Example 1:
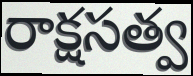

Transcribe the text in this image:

రాక్షసత్వ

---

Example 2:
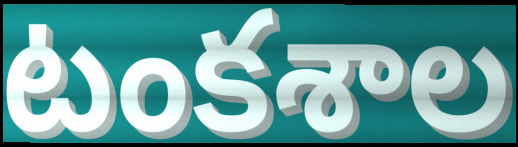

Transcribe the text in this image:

టంకశాల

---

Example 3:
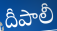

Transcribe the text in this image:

దీపాలీ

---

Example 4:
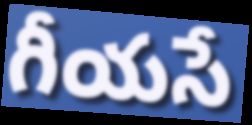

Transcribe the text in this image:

గీయసే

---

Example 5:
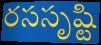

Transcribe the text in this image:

రససృష్టి